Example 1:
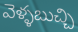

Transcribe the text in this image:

వెళ్ళబుచ్చి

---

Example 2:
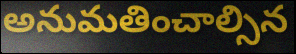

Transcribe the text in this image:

అనుమతించాల్సిన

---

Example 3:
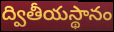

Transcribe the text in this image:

ద్వితీయస్థానం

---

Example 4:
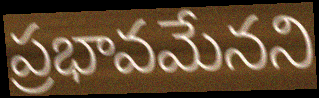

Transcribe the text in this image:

ప్రభావమేనని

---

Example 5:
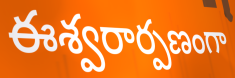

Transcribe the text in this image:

ఈశ్వరార్పణంగా